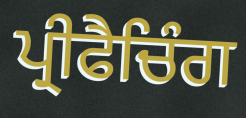
ਪ੍ਰੀਫੈਚਿੰਗ